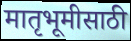
मातृभूमीसाठी